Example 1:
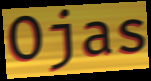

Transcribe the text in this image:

Ojas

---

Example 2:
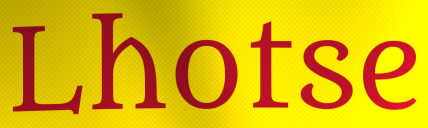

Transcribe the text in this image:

Lhotse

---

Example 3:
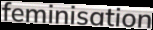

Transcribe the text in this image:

feminisation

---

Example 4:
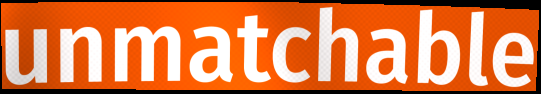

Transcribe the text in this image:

unmatchable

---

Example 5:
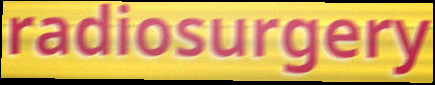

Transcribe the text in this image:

radiosurgery